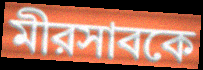
মীরসাবকে